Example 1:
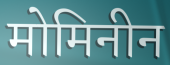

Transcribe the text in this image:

मोमिनीन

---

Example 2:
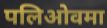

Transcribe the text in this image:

पलिओवमा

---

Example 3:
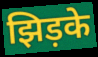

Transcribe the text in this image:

झिड़के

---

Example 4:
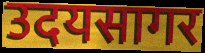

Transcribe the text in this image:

उदयसागर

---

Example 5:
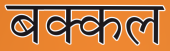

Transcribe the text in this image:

बक्कल